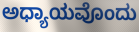
ಅಧ್ಯಾಯವೊಂದು